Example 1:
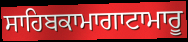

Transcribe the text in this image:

ਸਾਹਿਬਕਾਮਾਗਾਟਾਮਾਰੂ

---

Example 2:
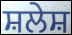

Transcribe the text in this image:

ਸ਼ਲੇਸ਼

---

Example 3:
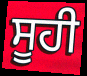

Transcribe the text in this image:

ਸੂਹੀ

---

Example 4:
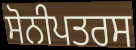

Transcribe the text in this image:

ਸੋਨੀਪਤਰਸ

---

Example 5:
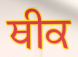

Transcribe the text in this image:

ਥੀਕ